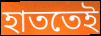
হাততেই